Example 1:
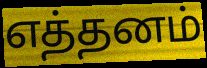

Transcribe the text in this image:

எத்தனம்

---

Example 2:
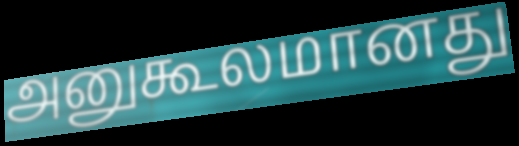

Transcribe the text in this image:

அனுகூலமானது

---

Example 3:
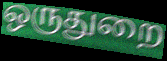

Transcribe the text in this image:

ஒருதுறை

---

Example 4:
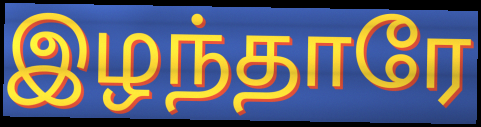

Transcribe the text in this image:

இழந்தாரே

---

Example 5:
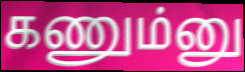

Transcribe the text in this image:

கணும்னு